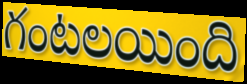
గంటలయింది